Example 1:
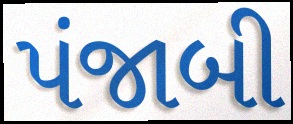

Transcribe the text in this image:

પંજાબી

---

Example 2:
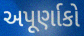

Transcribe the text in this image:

અપૂર્ણાકો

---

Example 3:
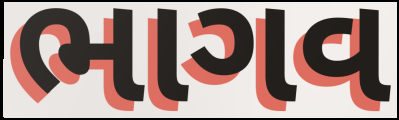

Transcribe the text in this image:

ભાગવ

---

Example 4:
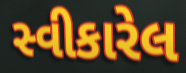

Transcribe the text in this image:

સ્વીકારેલ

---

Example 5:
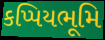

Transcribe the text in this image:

કપ્પિયભૂમિ